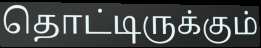
தொட்டிருக்கும்